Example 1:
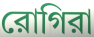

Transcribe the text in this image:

রোগিরা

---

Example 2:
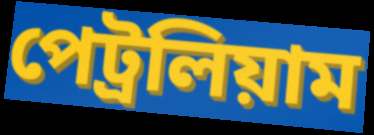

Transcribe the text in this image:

পেট্রলিয়াম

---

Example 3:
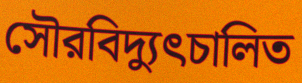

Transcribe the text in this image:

সৌরবিদ্যুৎচালিত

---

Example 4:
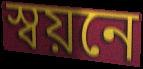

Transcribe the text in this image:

স্বয়নে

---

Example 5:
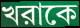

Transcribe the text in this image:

খরাকে